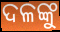
ଦଳଙ୍କୁ